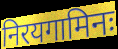
निरयगामिनः